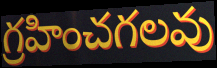
గ్రహించగలవు